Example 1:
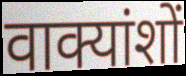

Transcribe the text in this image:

वाक्यांशों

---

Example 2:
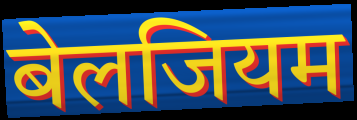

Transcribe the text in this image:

बेलजियम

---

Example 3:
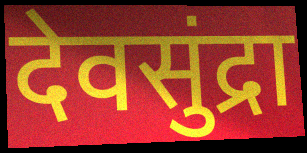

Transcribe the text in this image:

देवसुंद्रा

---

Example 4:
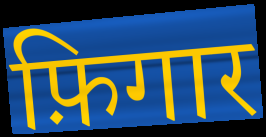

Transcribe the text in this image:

फ़िगार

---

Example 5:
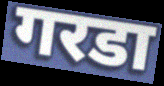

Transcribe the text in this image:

गरडा